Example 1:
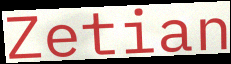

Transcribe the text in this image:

Zetian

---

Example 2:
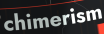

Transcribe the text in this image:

chimerism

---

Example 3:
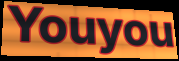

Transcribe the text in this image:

Youyou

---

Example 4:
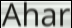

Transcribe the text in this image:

Ahar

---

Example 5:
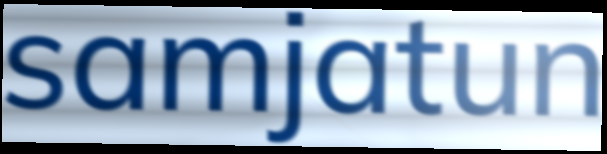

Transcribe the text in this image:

samjatun